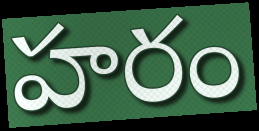
హరం